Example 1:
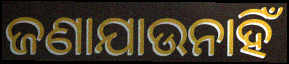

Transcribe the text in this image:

ଜଣାଯାଉନାହିଁ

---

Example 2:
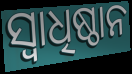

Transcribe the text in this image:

ସ୍ୱାଧିଷ୍ଠାନ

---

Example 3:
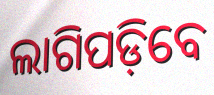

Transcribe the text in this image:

ଲାଗିପଡ଼ିବେ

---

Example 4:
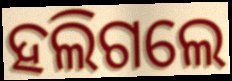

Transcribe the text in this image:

ହଲିଗଲେ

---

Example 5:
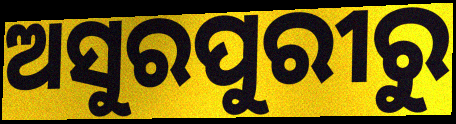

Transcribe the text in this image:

ଅସୁରପୁରୀରୁ